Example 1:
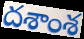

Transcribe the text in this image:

దశాంశ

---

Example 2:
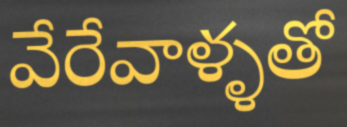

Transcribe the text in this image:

వేరేవాళ్ళతో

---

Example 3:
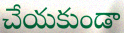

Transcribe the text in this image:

చేయకుండా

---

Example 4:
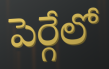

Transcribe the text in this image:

పెర్గేలో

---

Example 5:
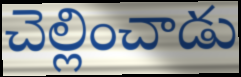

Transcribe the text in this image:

చెల్లించాడు